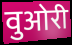
वुओरी